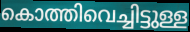
കൊത്തിവെച്ചിട്ടുള്ള